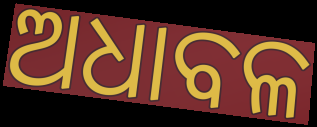
ଅଧାବଳ